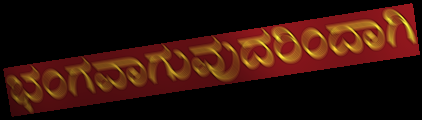
ಭಂಗವಾಗುವುದರಿಂದಾಗಿ